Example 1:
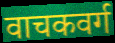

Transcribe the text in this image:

वाचकवर्ग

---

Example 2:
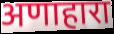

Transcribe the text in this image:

अणाहारा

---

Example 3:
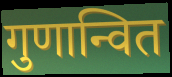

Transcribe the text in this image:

गुणान्वित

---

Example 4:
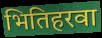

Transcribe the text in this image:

भितिहरवा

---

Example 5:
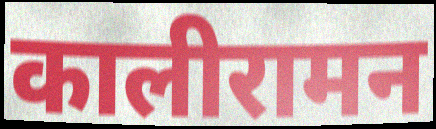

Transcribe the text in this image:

कालीरामन